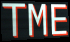
TME